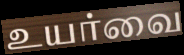
உயர்வை